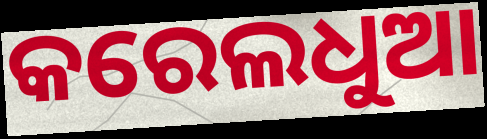
କରେଲଧୁଆ